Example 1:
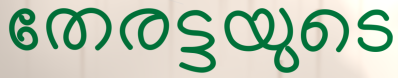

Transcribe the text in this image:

തേരട്ടയുടെ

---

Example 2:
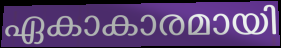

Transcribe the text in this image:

ഏകാകാരമായി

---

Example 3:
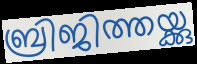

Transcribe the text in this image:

ബ്രിജിത്തയ്ക്കു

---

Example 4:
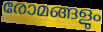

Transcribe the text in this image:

രോമങ്ങളും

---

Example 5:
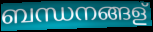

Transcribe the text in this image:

ബന്ധനങ്ങള്